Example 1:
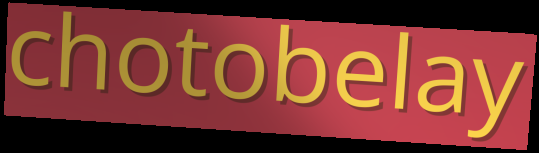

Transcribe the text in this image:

chotobelay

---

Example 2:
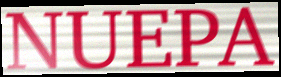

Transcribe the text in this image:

NUEPA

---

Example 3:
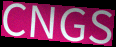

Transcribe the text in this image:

CNGS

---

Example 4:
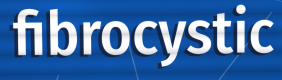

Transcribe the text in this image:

fibrocystic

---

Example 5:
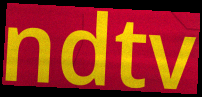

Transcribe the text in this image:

ndtv